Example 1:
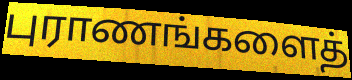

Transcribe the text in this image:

புராணங்களைத்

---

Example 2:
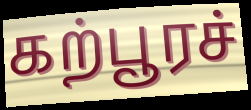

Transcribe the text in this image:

கற்பூரச்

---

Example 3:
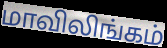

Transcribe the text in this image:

மாவிலிங்கம்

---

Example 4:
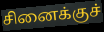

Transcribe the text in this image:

சினைக்குச்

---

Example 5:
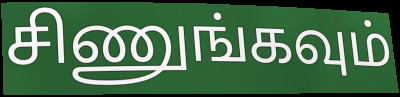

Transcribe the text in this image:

சிணுங்கவும்